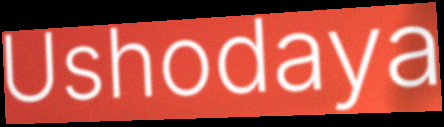
Ushodaya